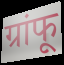
ग्रांफू